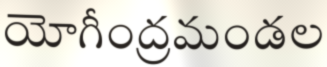
యోగీంద్రమండల